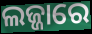
ଲଜ୍ଜାରେ